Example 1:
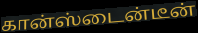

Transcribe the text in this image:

கான்ஸ்டைன்டீன்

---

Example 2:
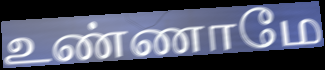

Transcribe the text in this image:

உண்ணாமே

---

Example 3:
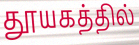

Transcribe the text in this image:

தூயகத்தில்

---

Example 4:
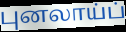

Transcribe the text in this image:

புனலாய்ப்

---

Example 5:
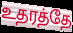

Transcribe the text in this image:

உதரத்தே